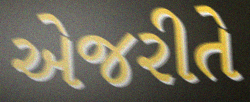
એજરીતે